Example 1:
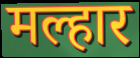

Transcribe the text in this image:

मल्हार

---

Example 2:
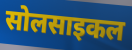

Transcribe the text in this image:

सोलसाइकल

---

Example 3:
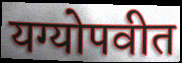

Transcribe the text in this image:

यग्योपवीत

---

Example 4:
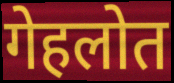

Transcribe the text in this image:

गेहलोत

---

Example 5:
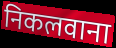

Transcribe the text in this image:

निकलवाना